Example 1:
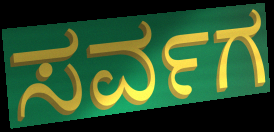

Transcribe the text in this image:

ಸರ್ವಗ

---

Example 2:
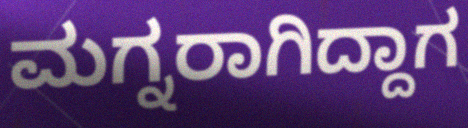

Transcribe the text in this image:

ಮಗ್ನರಾಗಿದ್ದಾಗ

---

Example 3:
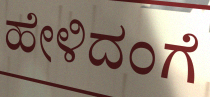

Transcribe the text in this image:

ಹೇಳಿದಂಗೆ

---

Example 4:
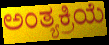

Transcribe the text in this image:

ಅಂತ್ಯಕ್ರಿಯೆ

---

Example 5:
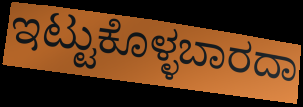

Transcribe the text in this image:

ಇಟ್ಟುಕೊಳ್ಳಬಾರದಾ